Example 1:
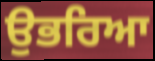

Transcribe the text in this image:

ਉਭਰਿਆ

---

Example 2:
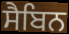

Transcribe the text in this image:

ਸੈਬਿਨ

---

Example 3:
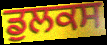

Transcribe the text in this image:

ਡੁਲਕਸ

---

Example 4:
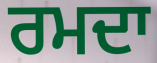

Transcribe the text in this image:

ਰਮਦਾ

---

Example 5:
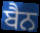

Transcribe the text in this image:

ਬੈਨ